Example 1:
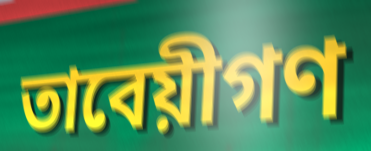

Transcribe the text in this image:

তাবেয়ীগণ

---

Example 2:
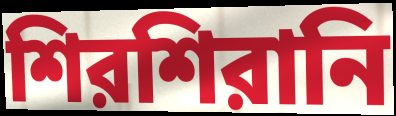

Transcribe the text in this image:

শিরশিরানি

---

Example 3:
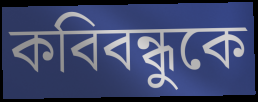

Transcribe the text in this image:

কবিবন্ধুকে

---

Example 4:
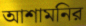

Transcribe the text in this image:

আশামনির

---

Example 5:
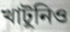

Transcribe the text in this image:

খাটুনিও